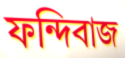
ফন্দিবাজ